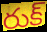
రుక్